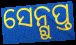
ସେନ୍ଗୁପ୍ତ